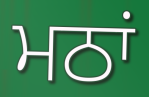
ਮਠਾਂ